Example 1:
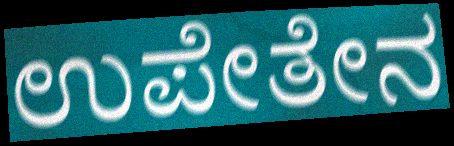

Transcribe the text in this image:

ಉಪೇತೇನ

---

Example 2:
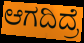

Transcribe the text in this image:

ಆಗದಿದ್ರೆ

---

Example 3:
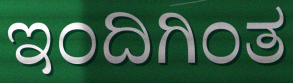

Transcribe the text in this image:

ಇಂದಿಗಿಂತ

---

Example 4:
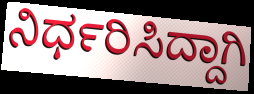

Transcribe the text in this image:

ನಿರ್ಧರಿಸಿದ್ದಾಗಿ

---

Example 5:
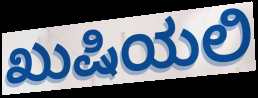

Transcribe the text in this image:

ಖುಷಿಯಲಿ